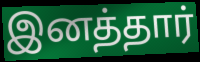
இனத்தார்